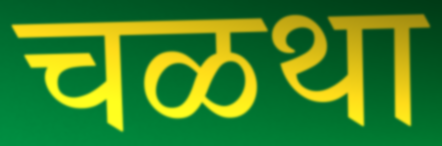
चळथा